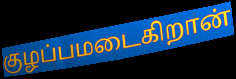
குழப்பமடைகிறான்